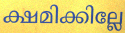
ക്ഷമിക്കില്ലേ